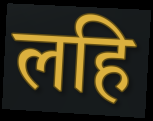
लहि